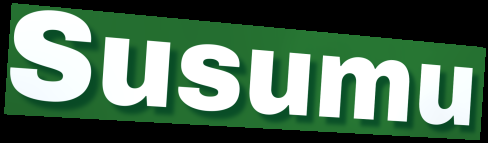
Susumu